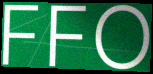
FFO